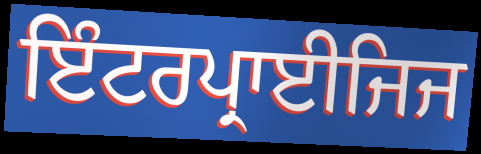
ਇੰਟਰਪ੍ਰਾਈਜਿਜ